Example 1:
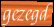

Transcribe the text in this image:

gezegd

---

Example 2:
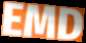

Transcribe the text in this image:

EMD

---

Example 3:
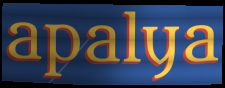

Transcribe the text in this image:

apalya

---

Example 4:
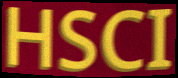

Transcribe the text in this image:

HSCI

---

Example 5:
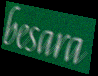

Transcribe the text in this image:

besara